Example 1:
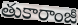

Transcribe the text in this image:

తుకారాంజీ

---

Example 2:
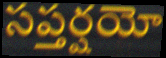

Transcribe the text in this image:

సప్తర్షయో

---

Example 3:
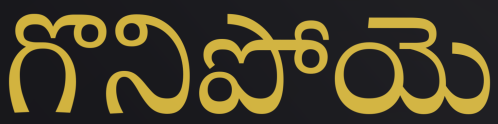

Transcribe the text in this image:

గొనిపోయె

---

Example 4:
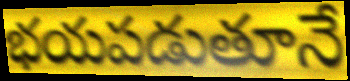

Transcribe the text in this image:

భయపడుతూనే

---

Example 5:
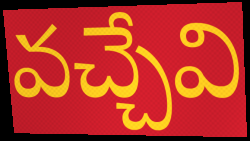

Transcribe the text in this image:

వచ్చేవి